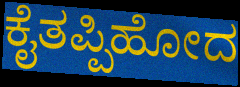
ಕೈತಪ್ಪಿಹೋದ